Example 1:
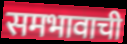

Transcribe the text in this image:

समभावाची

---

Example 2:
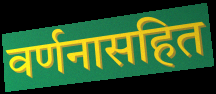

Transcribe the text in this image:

वर्णनासहित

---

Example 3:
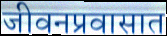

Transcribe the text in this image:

जीवनप्रवासात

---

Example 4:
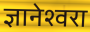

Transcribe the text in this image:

ज्ञानेश्वरा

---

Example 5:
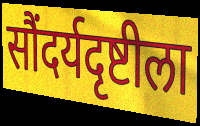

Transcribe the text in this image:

सौंदर्यदृष्टीला